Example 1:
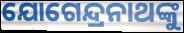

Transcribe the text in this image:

ଯୋଗେନ୍ଦ୍ରନାଥଙ୍କୁ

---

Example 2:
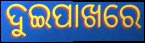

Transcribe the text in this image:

ଦୁଇପାଖରେ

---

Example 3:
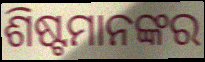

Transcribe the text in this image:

ଶିଷ୍ଟମାନଙ୍କର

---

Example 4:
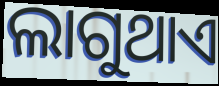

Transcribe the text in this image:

ଲାଗୁଥାଏ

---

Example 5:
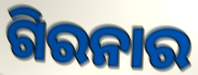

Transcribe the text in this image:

ଗିରନାର